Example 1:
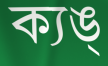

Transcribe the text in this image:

ক্যঙ্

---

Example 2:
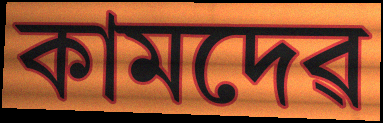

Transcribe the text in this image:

কামদেৱ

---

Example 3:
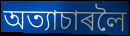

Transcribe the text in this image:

অত্যাচাৰলৈ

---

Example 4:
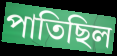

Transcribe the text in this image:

পাতিছিল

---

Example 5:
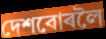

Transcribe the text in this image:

দেশবোৰলৈ